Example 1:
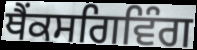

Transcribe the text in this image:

ਥੈਂਕਸਗਿਵਿੰਗ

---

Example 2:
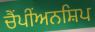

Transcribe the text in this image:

ਚੈਂਪੀਂਅਨਸ਼ਿਪ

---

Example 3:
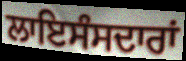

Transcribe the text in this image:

ਲਾਇਸੰਸਦਾਰਾਂ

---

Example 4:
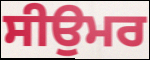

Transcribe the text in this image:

ਸੀਉਮਰ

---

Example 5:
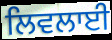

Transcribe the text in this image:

ਲਿਵਲਾਈ